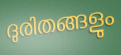
ദുരിതങ്ങളും